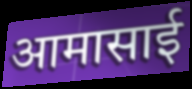
आमासाई